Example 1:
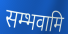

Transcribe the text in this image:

सम्भवामि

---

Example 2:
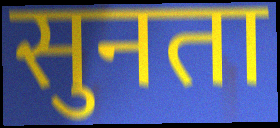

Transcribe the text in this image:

सुनता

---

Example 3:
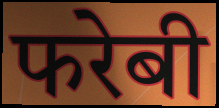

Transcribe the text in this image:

फरेबी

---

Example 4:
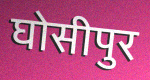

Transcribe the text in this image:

घोसीपुर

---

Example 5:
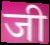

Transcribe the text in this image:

जी